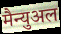
मैन्युअल